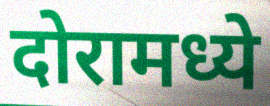
दोरामध्ये